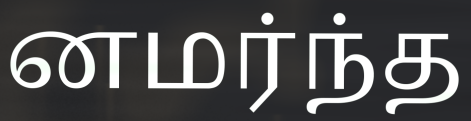
னமர்ந்த